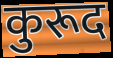
कुरूद